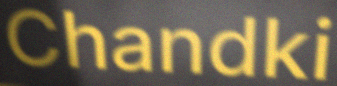
Chandki